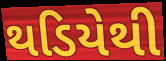
થડિયેથી